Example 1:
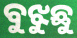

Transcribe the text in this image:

ବୁଝୁଛୁ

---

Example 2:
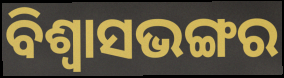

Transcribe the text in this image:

ବିଶ୍ଵାସଭଙ୍ଗର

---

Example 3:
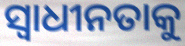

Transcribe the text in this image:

ସ୍ବାଧୀନତାକୁ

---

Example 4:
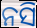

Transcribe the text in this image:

ନସି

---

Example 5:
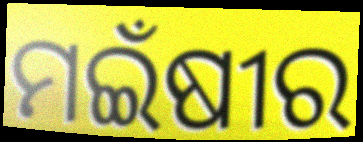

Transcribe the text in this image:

ମଇଁଷୀର